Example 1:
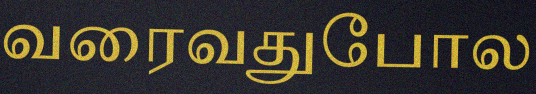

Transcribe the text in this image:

வரைவதுபோல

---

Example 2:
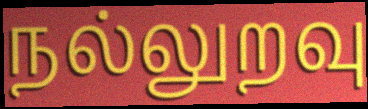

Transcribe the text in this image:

நல்லுறவு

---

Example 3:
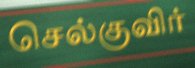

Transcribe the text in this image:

செல்குவிர்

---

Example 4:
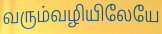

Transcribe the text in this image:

வரும்வழியிலேயே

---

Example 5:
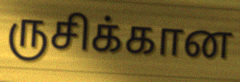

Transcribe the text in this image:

ருசிக்கான